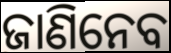
ଜାଣିନେବ